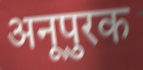
अनूपुरक